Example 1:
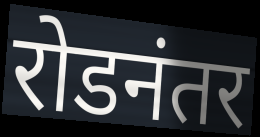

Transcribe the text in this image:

रोडनंतर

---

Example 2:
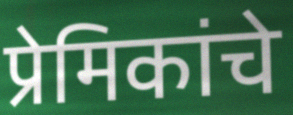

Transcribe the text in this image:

प्रेमिकांचे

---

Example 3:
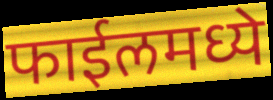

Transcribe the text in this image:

फाईलमध्ये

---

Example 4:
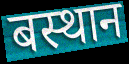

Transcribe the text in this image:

बस्थान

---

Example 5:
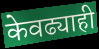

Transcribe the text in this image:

केवढ्याही